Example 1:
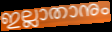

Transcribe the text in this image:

ഇല്ലാതാനും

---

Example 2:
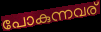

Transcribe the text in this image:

പോകുന്നവര്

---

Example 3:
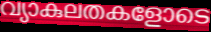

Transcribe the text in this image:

വ്യാകുലതകളോടെ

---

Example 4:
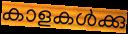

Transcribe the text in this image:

കാളകൾക്കു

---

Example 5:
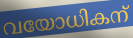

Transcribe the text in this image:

വയോധികന്